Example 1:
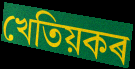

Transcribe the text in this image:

খেতিয়কৰ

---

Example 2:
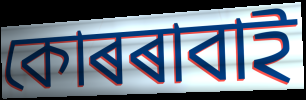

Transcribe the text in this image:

কোৰৰাবাই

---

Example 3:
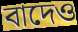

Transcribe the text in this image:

বাদেও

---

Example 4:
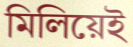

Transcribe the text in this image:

মিলিয়েই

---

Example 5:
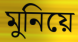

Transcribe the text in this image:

মুনিয়ে